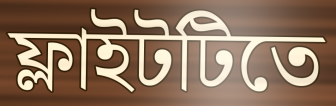
ফ্লাইটটিতে